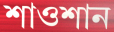
শাওশান